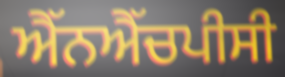
ਐੱਨਐੱਚਪੀਸੀ